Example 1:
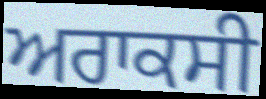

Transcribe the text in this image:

ਅਰਾਕਸੀ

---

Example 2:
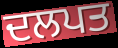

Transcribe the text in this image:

ਦਲਪਤ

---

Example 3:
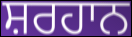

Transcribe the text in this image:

ਸ਼ਰਹਾਨ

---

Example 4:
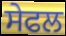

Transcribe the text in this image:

ਸੇਫਲ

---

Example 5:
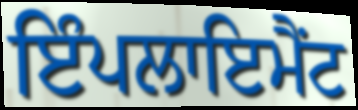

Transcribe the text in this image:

ਇੰਪਲਾਇਮੈਂਟ